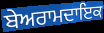
ਬੇਅਰਾਮਦਾਇਕ